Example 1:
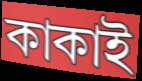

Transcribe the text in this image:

কাকাই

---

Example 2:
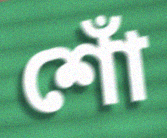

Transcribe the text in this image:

শোঁ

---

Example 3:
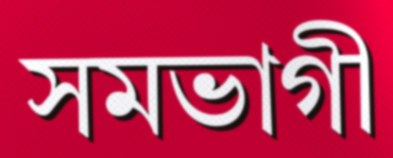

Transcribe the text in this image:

সমভাগী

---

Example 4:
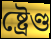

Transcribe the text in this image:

ষ্ট্ৰেণ্ড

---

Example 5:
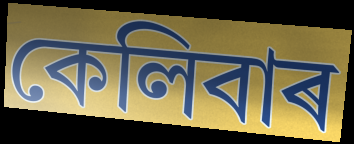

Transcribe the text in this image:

কেলিবাৰ